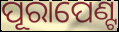
ପୂରାପେଣ୍ଟ